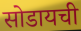
सोडायची